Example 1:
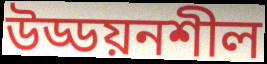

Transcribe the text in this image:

উড্ডয়নশীল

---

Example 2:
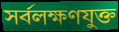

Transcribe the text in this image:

সর্বলক্ষণযুক্ত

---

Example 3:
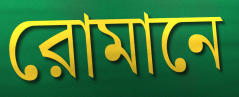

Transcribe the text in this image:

রোমানে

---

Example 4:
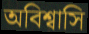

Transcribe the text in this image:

অবিশ্বাসি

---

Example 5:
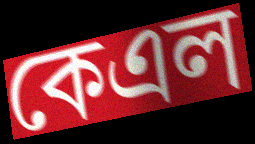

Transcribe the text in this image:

কেএল